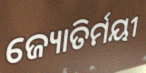
ଜ୍ୟୋତିର୍ମୟୀ